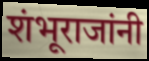
शंभूराजांनी